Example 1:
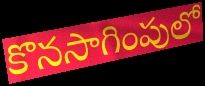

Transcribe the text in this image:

కొనసాగింపులో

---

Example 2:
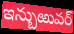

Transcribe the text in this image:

ఇన్బుఱువర్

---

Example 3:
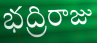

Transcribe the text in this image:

భద్రిరాజు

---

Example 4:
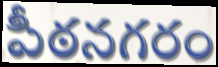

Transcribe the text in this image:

పీఠనగరం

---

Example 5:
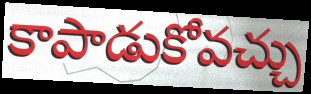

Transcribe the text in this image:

కాపాడుకోవచ్చు